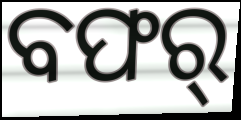
ବଫର୍